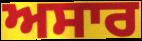
ਅਸਾਰ